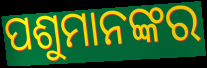
ପଶୁମାନଙ୍କର